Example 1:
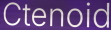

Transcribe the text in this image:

Ctenoid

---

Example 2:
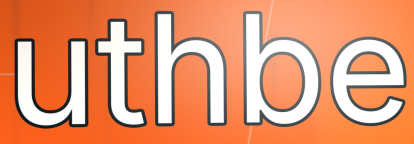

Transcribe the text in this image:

uthbe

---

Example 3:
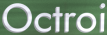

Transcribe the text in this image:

Octroi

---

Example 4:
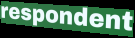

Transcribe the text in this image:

respondent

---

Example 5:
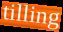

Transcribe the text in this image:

tilling